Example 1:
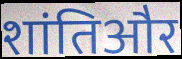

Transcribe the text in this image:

शांतिऔर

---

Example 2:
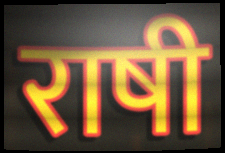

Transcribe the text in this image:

राषी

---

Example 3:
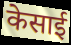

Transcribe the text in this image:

केसाई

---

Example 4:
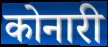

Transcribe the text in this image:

कोनारी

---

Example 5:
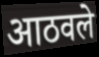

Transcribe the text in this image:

आठवले